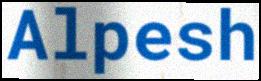
Alpesh